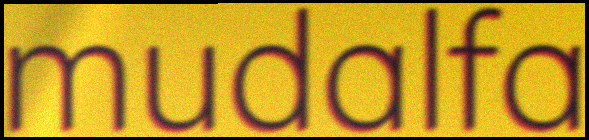
mudalfa